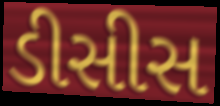
ડીસીસ